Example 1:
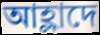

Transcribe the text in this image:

আহ্লাদে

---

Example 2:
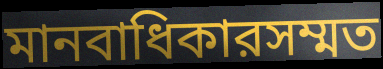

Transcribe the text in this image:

মানবাধিকারসম্মত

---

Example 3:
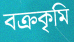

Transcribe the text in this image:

বক্রকৃমি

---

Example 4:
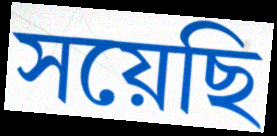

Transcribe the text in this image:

সয়েছি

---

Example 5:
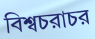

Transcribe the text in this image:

বিশ্বচরাচর